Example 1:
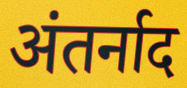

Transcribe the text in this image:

अंतर्नाद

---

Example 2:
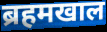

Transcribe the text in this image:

ब्रहमखाल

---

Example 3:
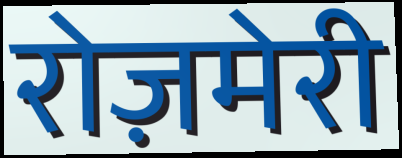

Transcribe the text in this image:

रोज़मेरी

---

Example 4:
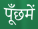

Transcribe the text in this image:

पूँछमें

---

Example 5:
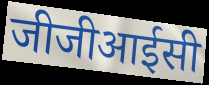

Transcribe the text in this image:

जीजीआईसी